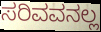
ಸರಿವವನಲ್ಲ